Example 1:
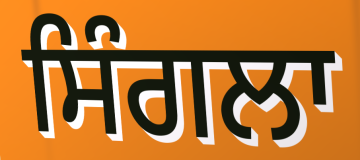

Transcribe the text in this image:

ਸਿੰਗਲਾ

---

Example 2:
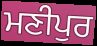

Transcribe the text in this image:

ਮਣੀਪੁਰ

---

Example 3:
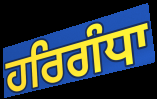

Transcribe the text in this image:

ਹਰਿਗੰਧਾ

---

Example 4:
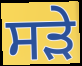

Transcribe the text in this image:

ਸੜੇ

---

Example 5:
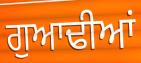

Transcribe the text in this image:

ਗੁਆਢੀਆਂ